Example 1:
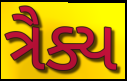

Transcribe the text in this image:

ત્રૈક્ય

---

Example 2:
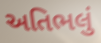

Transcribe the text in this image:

અતિભલું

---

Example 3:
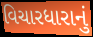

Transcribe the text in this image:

વિચારધારાનું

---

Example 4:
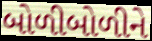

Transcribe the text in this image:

બોળીબોળીને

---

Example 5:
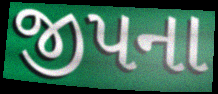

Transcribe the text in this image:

જીપના